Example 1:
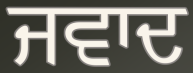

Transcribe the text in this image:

ਜਵਾਦ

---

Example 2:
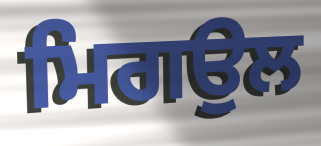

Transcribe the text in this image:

ਮਿਗਉਲ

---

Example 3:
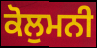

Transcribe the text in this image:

ਕੋਲੁਮਨੀ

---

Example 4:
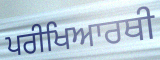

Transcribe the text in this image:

ਪਰੀਖਿਆਰਥੀ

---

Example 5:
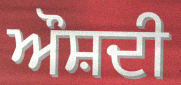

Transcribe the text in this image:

ਔਸ਼ਦੀ